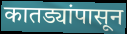
कातड्यांपासून